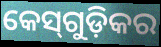
କେସ୍‌ଗୁଡ଼ିକର